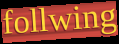
follwing